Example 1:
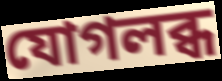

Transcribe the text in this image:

যোগলব্ধ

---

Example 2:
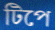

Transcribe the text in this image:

টিপে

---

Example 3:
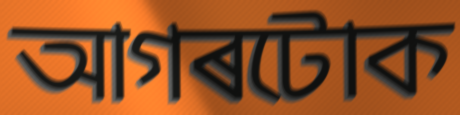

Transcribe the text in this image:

আগৰটোক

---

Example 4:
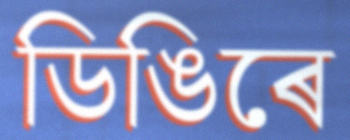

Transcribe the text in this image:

ডিঙিৰে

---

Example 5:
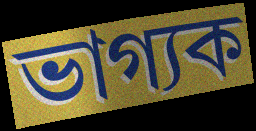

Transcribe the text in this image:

ভাগ্যক